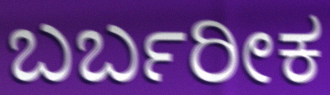
ಬರ್ಬರೀಕ